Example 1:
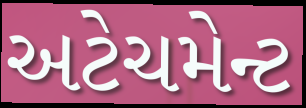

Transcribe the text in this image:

અટેચમેન્ટ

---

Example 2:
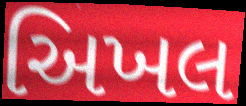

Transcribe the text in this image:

અિખલ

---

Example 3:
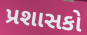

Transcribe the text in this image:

પ્રશાસકો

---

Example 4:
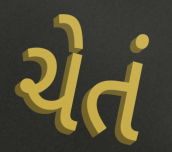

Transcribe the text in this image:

ચેતં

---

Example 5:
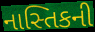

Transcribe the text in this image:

નાસ્તિકની